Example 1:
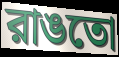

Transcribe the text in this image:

রাঙতো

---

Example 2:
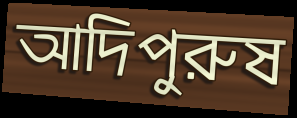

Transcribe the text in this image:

আদিপুরুষ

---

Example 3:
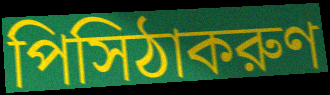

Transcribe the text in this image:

পিসিঠাকরুণ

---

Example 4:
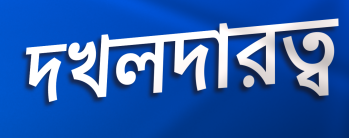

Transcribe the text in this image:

দখলদারত্ব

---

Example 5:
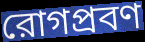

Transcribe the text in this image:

রোগপ্রবণ